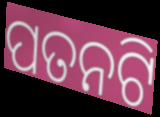
ପତନଟି